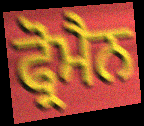
ਫ੍ਰੋਮੈਨ